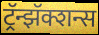
ट्रॅन्झॅक्शन्स